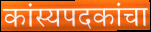
कांस्यपदकांचा